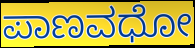
ಪಾಣವಧೋ